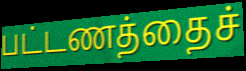
பட்டணத்தைச்